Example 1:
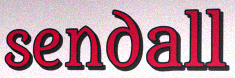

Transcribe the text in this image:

sendall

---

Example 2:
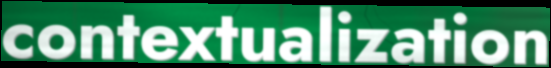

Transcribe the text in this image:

contextualization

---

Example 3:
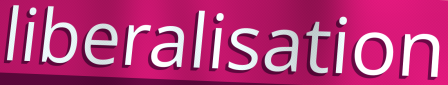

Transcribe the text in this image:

liberalisation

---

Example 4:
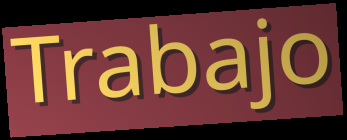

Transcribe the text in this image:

Trabajo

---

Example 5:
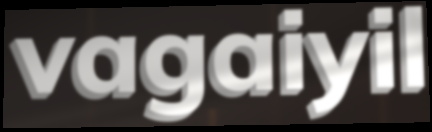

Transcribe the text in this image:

vagaiyil